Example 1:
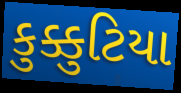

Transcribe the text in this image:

કુક્કુટિયા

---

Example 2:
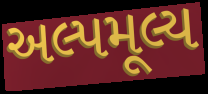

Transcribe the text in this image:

અલ્પમૂલ્ય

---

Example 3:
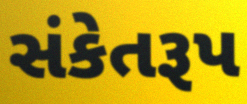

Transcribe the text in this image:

સંકેતરૂપ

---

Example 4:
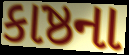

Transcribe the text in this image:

કાષ્ઠના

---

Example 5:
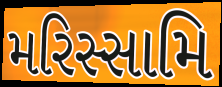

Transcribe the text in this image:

મરિસ્સામિ